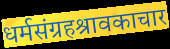
धर्मसंग्रहश्रावकाचार